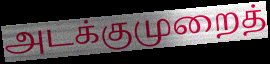
அடக்குமுறைத்